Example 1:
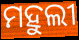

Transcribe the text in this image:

ମହୁଲୀ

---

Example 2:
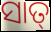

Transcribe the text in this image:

ସାତ୍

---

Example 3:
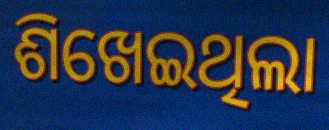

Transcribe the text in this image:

ଶିଖେଇଥିଲା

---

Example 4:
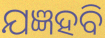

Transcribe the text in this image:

ଯଜ୍ଞହବି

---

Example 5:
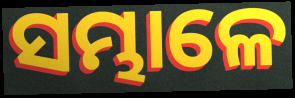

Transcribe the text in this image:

ସମ୍ଭାଳେ